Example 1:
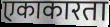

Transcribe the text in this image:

एकाकारता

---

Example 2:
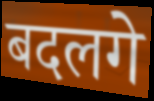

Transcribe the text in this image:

बदलगे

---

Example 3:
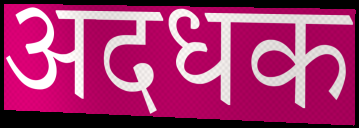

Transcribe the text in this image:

अदधक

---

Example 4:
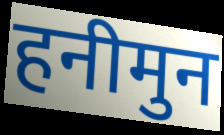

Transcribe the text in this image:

हनीमुन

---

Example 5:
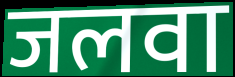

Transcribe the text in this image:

जलवा